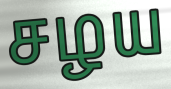
சழய